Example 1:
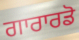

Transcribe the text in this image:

ਗਾਰਾਰਡੋ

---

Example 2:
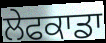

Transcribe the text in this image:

ਲੇਫਕਾਡਾ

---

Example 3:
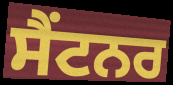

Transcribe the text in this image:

ਸੈਂਟਨਰ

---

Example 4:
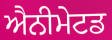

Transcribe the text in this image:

ਐਨੀਮੇਟਡ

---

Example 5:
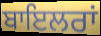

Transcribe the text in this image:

ਬਾਇਲਰਾਂ